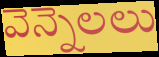
వెన్నెలలు